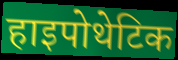
हाइपोथेटिक